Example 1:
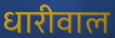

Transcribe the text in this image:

धारीवाल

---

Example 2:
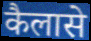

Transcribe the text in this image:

कैलासे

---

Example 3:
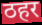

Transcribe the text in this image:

ठहर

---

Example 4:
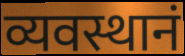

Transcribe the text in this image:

व्यवस्थानं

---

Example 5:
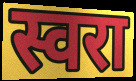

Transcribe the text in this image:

स्वरा